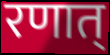
रणात्